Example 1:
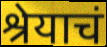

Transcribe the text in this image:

श्रेयाचं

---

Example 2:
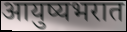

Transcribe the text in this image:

आयुष्यभरात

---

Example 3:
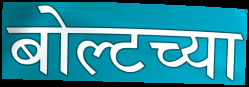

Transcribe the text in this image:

बोल्टच्या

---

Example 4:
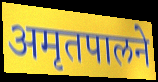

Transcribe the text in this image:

अमृतपालने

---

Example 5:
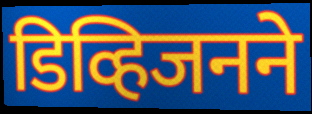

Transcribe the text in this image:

डिव्हिजनने